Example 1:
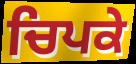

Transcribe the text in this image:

ਚਿਪਕੇ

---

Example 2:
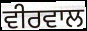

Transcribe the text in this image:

ਵੀਰਵਾਲ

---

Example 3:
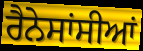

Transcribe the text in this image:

ਰੈਨੇਸਾਂਸੀਆਂ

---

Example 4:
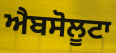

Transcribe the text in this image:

ਐਬਸੋਲੂਟਾ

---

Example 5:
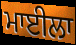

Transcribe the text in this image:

ਮਾਈਲਾ